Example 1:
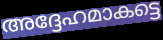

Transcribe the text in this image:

അദ്ദേഹമാകട്ടെ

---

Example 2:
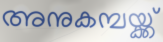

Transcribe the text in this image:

അനുകമ്പയ്ക്ക്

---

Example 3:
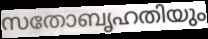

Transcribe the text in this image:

സതോബൃഹതിയും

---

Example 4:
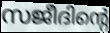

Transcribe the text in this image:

സജീദിന്റെ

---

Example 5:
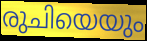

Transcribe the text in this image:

രുചിയെയും